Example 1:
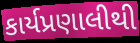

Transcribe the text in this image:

કાર્યપ્રણાલીથી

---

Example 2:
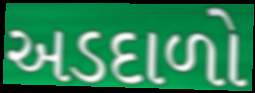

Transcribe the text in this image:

અડદાળો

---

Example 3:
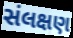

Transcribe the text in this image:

સંલક્ષણ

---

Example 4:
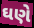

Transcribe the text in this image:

ઘણે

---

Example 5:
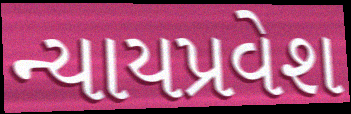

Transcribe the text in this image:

ન્યાયપ્રવેશ